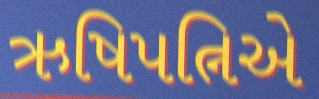
ઋષિપત્નિએ